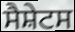
ਸੈਸ਼ੇਟਸ